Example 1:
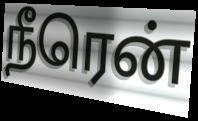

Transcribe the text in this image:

நீரென்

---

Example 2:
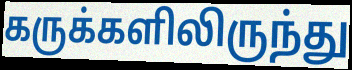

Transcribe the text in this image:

கருக்களிலிருந்து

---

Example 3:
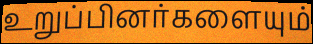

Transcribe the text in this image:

உறுப்பினர்களையும்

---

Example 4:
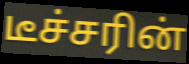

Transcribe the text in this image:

டீச்சரின்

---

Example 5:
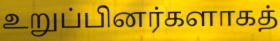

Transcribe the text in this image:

உறுப்பினர்களாகத்